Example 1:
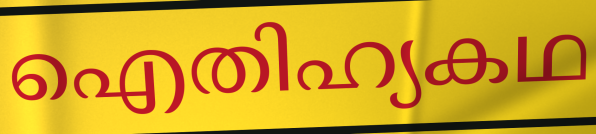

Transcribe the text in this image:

ഐതിഹ്യകഥ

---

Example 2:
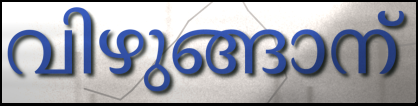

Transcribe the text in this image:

വിഴുങ്ങാന്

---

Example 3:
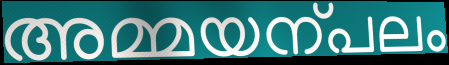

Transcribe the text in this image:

അമ്മയന്പലം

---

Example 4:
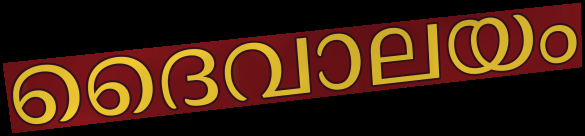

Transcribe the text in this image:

ദൈവാലയം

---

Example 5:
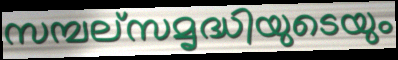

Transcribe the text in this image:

സമ്പല്സമൃദ്ധിയുടെയും